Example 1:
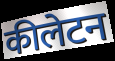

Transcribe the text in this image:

कीलेटन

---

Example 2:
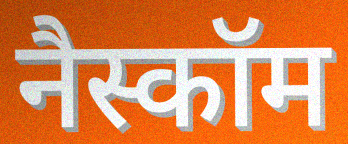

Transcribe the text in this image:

नैस्कॉम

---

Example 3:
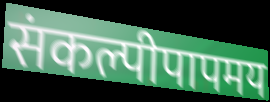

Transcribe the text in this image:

संकल्पीपापमय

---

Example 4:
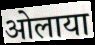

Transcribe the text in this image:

ओलाया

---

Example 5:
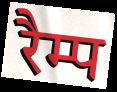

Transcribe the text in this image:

रैम्प